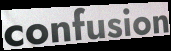
confusion